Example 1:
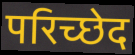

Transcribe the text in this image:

परिच्छेद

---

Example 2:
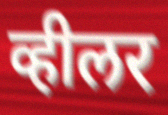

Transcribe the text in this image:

व्हीलर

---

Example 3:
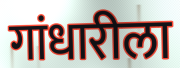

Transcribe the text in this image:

गांधारीला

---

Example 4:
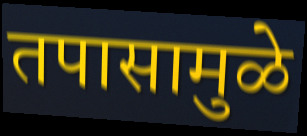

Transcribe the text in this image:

तपासामुळे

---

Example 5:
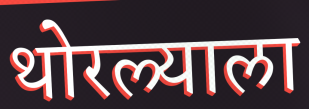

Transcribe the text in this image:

थोरल्याला